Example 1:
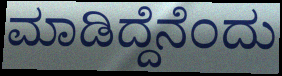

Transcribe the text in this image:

ಮಾಡಿದ್ದೆನೆಂದು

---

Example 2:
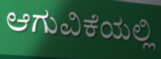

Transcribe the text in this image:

ಆಗುವಿಕೆಯಲ್ಲಿ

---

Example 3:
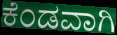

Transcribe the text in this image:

ಕೆಂಡವಾಗಿ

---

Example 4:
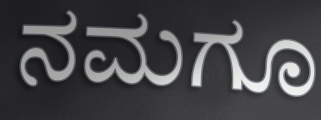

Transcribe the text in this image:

ನಮಗೂ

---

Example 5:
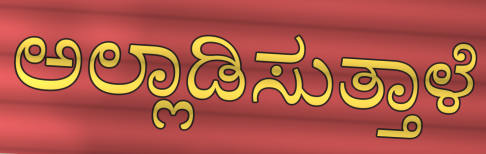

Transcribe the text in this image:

ಅಲ್ಲಾಡಿಸುತ್ತಾಳೆ